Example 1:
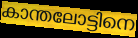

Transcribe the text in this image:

കാന്തലോട്ടിനെ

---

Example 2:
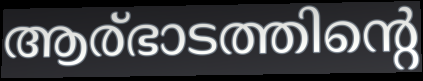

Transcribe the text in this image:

ആര്ഭാടത്തിന്റെ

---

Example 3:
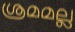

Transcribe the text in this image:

ശ്രമമല്ല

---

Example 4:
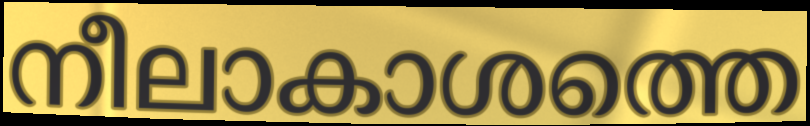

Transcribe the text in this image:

നീലാകാശത്തെ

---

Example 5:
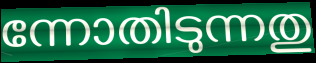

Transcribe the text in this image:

ന്നോതിടുന്നതു